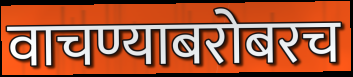
वाचण्याबरोबरच